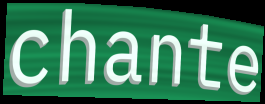
chante